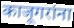
काजूगरांना